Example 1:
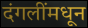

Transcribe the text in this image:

दंगलींमधून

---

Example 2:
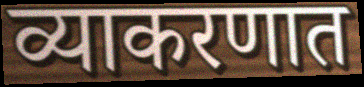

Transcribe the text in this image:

व्याकरणात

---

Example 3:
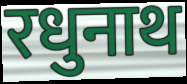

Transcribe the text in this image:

रधुनाथ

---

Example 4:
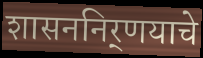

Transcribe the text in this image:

शासननिर्णयाचे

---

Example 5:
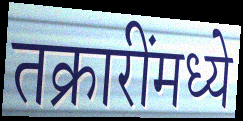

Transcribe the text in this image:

तक्रारींमध्ये